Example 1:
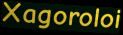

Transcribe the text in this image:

Xagoroloi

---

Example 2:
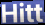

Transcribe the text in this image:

Hitt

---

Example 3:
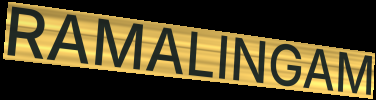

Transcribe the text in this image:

RAMALINGAM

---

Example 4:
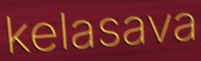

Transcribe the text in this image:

kelasava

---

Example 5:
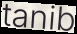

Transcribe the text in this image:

tanib